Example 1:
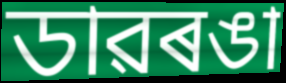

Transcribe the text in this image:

ডাৱৰঙা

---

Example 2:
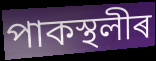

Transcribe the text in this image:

পাকস্থলীৰ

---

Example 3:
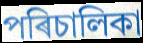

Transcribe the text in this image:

পৰিচালিকা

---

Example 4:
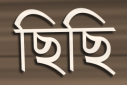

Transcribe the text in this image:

ছিছি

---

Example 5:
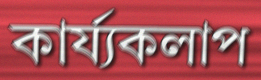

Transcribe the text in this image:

কাৰ্য্যকলাপ